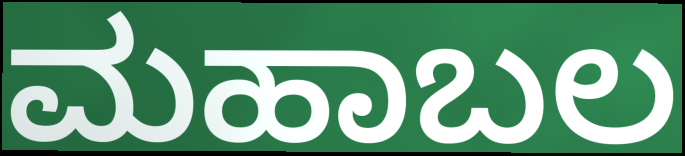
ಮಹಾಬಲ